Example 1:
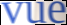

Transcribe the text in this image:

vue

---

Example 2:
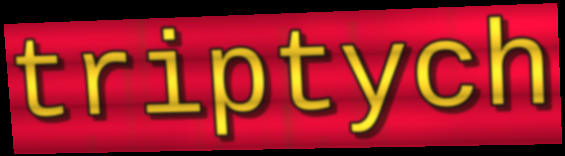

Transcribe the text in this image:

triptych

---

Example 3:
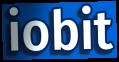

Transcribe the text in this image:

iobit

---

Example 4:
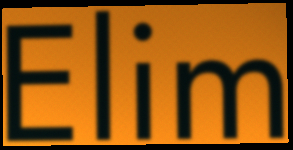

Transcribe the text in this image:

Elim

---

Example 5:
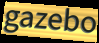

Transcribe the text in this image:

gazebo